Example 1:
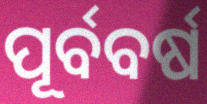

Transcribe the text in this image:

ପୂର୍ବବର୍ଷ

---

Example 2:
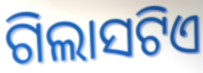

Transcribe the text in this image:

ଗିଲାସଟିଏ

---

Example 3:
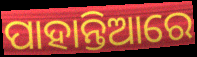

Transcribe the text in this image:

ପାହାନ୍ତିଆରେ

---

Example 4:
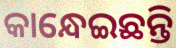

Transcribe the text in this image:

କାନ୍ଧେଇଛନ୍ତି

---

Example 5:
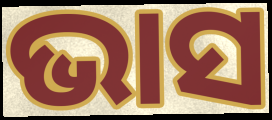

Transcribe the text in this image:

ଭାସ